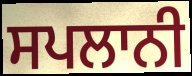
ਸਪਲਾਨੀ